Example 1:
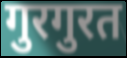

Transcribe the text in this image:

गुरगुरत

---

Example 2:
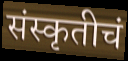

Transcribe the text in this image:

संस्कृतीचं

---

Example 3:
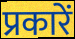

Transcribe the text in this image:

प्रकारें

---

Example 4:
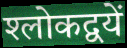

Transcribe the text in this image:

श्लोकद्वयें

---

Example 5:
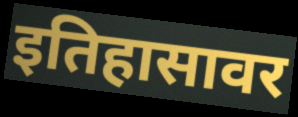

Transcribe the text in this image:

इतिहासावर